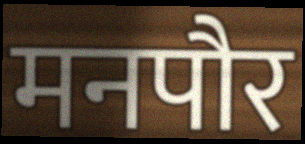
मनपौर